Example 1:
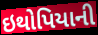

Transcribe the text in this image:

ઇથોપિયાની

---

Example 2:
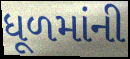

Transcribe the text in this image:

ધૂળમાંની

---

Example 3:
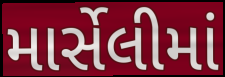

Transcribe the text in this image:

માર્સેલીમાં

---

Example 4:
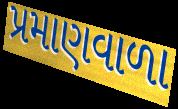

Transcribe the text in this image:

પ્રમાણવાળા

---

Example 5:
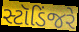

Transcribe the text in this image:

સ્ટૉડિંજરે